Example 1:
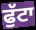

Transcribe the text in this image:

ਫੁੱਟਾ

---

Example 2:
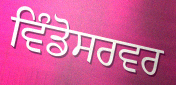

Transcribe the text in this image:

ਵਿੰਡੋਸਰਵਰ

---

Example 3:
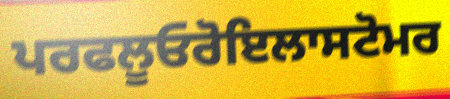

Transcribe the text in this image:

ਪਰਫਲੂਓਰੋਇਲਾਸਟੋਮਰ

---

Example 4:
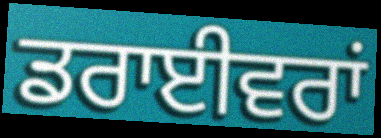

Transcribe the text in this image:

ਡਰਾਈਵਰਾਂ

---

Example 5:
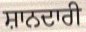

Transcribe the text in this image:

ਸ਼ਾਨਦਾਰੀ